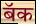
बॅक